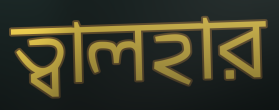
ত্বালহার